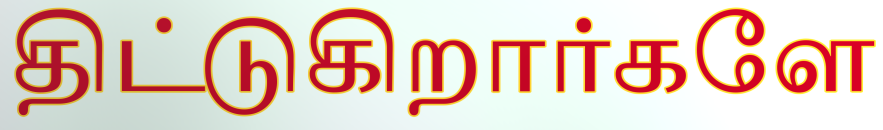
திட்டுகிறார்களே